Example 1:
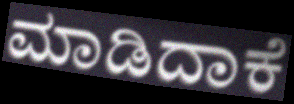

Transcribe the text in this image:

ಮಾಡಿದಾಕೆ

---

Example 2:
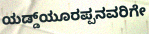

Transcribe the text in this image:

ಯಡ್ಡ್‌ಯೂರಪ್ಪನವರಿಗೇ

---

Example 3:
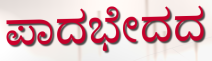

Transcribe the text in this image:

ಪಾದಭೇದದ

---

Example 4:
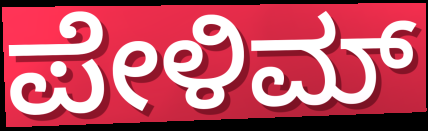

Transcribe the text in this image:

ಪೇಳಿಮ್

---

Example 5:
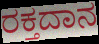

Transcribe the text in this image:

ರಕ್ತದಾನ